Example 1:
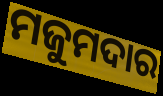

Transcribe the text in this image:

ମଜୁମଦାର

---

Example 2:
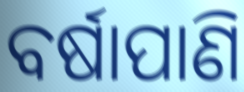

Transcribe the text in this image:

ବର୍ଷାପାଣି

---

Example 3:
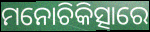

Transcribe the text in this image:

ମନୋଚିକିତ୍ସାରେ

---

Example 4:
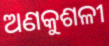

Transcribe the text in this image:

ଅଣକୁଶଳୀ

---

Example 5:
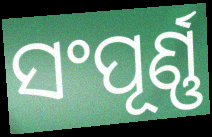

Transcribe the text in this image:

ସଂପୂର୍ଣ୍ଣ